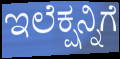
ಇಲೆಕ್ಷನ್ನಿಗೆ